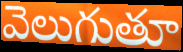
వెలుగుతూ